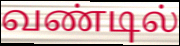
வண்டில்